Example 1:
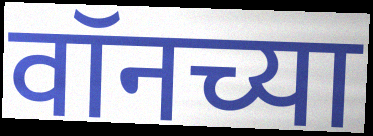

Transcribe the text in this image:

वॉनच्या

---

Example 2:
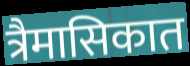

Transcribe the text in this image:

त्रैमासिकात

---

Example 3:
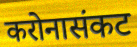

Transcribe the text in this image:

करोनासंकट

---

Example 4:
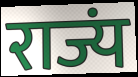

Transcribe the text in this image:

राज्यं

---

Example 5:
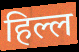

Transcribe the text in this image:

हिल्ल